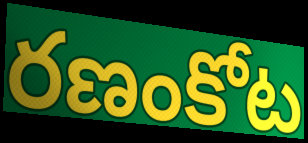
రణంకోట